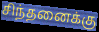
சிந்தனைக்கு